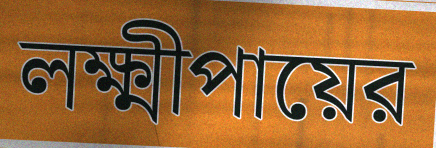
লক্ষ্মীপায়ের